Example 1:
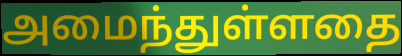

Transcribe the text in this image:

அமைந்துள்ளதை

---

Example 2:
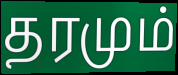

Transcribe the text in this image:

தரமும்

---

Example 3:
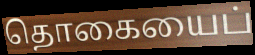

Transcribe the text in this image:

தொகையைப்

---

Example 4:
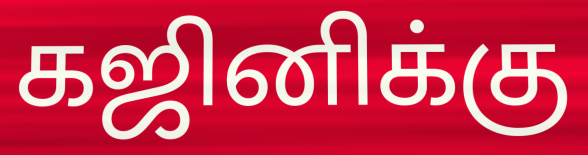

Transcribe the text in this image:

கஜினிக்கு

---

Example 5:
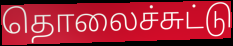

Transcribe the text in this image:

தொலைச்சுட்டு